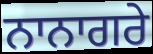
ਨਾਨਾਗਰੇ